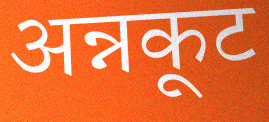
अन्नकूट